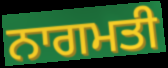
ਨਾਗਮਤੀ